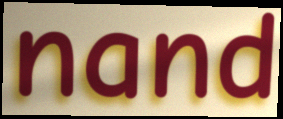
nand